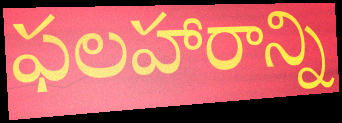
ఫలహారాన్ని